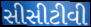
સીસીટીવી